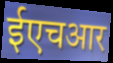
ईएचआर